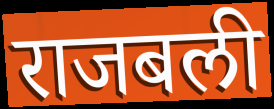
राजबली